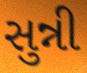
સુન્ની